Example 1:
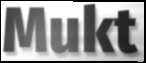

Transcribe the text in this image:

Mukt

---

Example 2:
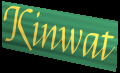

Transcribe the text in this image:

Kinwat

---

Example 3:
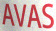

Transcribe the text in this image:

AVAS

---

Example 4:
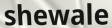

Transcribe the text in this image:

shewale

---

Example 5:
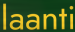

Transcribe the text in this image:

laanti